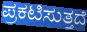
ಪ್ರಕಟಿಸುತ್ತದೆ